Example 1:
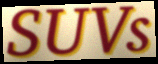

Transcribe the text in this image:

SUVs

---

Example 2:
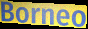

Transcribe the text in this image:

Borneo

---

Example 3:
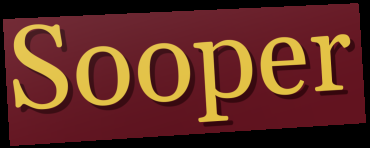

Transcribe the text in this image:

Sooper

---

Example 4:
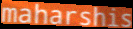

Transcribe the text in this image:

maharshis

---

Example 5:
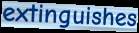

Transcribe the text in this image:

extinguishes